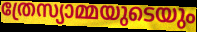
ത്രേസ്യാമ്മയുടെയും